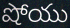
షోయు